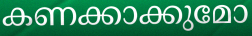
കണക്കാക്കുമോ